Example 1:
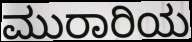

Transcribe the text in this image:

ಮುರಾರಿಯ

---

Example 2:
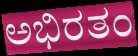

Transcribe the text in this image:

ಅಭಿರತಂ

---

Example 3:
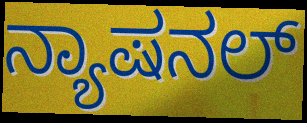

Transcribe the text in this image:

ನ್ಯಾಷನಲ್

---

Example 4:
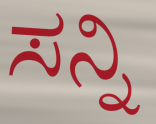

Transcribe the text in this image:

ಸನ್ನಿ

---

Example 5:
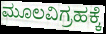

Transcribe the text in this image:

ಮೂಲವಿಗ್ರಹಕ್ಕೆ